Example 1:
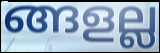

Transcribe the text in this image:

ങ്ങളല്ല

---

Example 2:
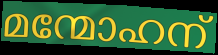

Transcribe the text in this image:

മന്മോഹന്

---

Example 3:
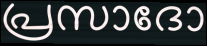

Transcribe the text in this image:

പ്രസാദോ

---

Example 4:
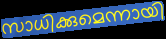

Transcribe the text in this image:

സാധിക്കുമെന്നായി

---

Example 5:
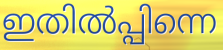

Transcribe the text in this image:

ഇതിൽപ്പിന്നെ